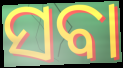
ସବା